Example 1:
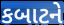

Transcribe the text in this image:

કબાટને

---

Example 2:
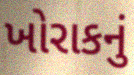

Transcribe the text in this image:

ખોરાકનું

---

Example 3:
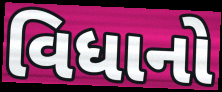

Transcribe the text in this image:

વિધાનો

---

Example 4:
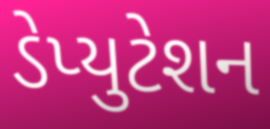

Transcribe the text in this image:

ડેપ્યુટેશન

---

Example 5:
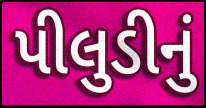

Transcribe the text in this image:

પીલુડીનું